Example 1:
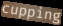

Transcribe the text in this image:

cupping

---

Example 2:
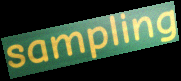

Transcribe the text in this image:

sampling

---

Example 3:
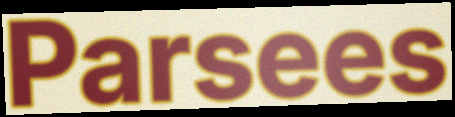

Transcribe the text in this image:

Parsees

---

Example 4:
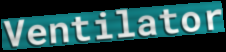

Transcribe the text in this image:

Ventilator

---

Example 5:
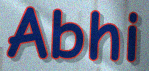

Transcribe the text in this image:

Abhi